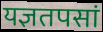
यज्ञतपसां